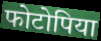
फोटोपिया